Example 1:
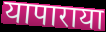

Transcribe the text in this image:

यापाराया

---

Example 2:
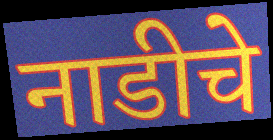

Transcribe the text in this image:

नाडीचे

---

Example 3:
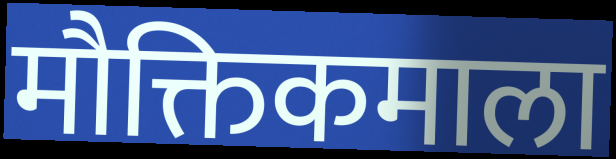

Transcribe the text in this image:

मौक्तिकमाला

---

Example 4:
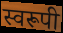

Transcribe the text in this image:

स्वरूपी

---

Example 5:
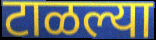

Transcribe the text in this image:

टाळल्या